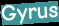
Gyrus